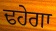
ਢਹੇਗਾ